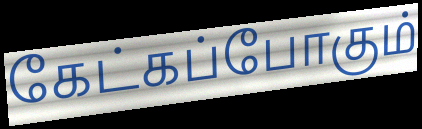
கேட்கப்போகும்